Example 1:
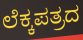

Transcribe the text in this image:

ಲೆಕ್ಕಪತ್ರದ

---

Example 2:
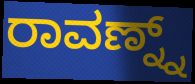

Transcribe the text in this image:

ರಾವಣ್ನ್ನ್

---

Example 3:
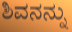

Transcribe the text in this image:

ಶಿವನನ್ನು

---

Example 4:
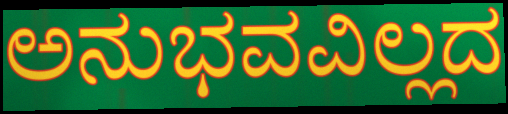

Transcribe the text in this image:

ಅನುಭವವಿಲ್ಲದ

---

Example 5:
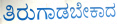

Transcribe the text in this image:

ತಿರುಗಾಡಬೇಕಾದ